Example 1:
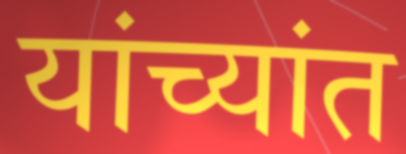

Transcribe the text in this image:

यांच्यांत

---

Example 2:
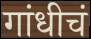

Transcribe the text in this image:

गांधीचं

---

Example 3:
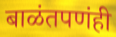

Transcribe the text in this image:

बाळंतपणंही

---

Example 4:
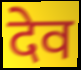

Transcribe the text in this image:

देव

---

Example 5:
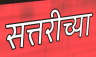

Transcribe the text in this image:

सत्तरीच्या